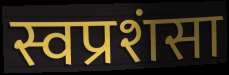
स्वप्रशंसा